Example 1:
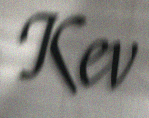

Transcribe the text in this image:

Kev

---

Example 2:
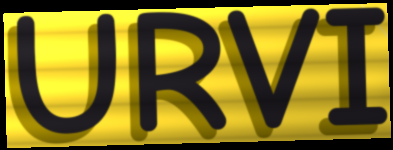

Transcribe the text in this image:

URVI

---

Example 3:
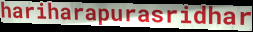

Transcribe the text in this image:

hariharapurasridhar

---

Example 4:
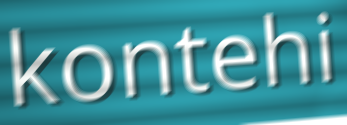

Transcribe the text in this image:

kontehi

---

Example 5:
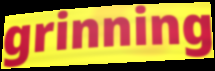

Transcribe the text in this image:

grinning